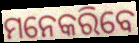
ମନେକରିବେ